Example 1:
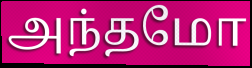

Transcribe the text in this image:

அந்தமோ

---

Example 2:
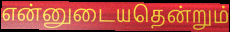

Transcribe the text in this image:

என்னுடையதென்றும்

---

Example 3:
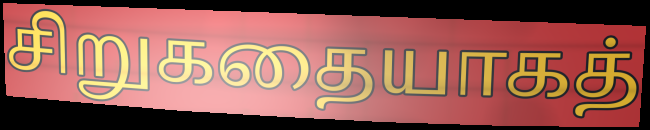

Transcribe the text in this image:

சிறுகதையாகத்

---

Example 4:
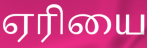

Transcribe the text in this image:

ஏரியை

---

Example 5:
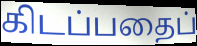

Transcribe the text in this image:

கிடப்பதைப்